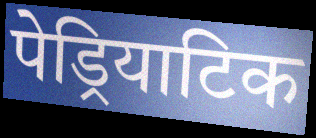
पेड्रियाटिक